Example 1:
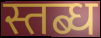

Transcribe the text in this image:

स्तब्ध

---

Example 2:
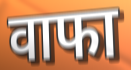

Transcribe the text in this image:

वाफा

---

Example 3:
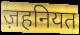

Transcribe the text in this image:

ज़हनियत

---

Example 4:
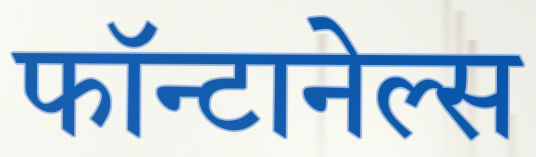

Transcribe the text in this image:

फॉन्टानेल्स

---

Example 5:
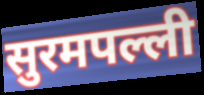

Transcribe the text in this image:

सुरमपल्ली